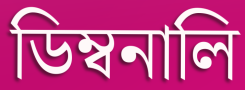
ডিম্বনালি